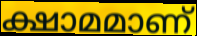
ക്ഷാമമാണ്